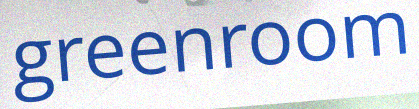
greenroom